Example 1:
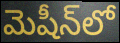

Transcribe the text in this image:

మెషీన్‌లో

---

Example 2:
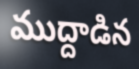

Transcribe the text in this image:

ముద్దాడిన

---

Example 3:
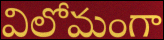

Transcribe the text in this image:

విలోమంగా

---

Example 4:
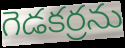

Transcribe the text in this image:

గెడకర్రను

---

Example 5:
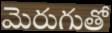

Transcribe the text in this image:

మెరుగుతో